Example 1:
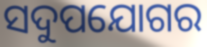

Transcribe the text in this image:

ସଦୁପଯୋଗର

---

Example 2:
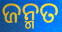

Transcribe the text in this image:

ଜନ୍ମତ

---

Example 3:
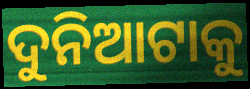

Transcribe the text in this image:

ଦୁନିଆଟାକୁ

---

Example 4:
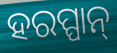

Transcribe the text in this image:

ହରପ୍ପାନ୍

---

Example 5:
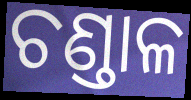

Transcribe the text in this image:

ଚଣ୍ଡାଳ